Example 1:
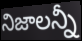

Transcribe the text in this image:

నిజాలన్నీ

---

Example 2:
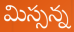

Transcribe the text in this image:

మిస్సన్న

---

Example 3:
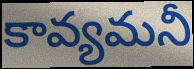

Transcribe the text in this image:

కావ్యమనీ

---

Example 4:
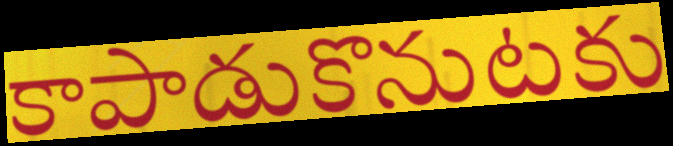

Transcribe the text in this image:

కాపాడుకొనుటకు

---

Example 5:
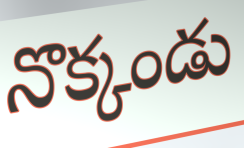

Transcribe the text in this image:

నొక్కండు